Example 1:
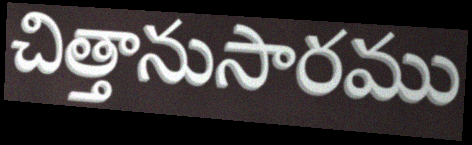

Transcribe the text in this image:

చిత్తానుసారము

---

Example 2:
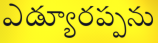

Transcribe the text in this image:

ఎడ్యూరప్పను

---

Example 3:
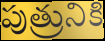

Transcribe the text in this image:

పుత్రునికి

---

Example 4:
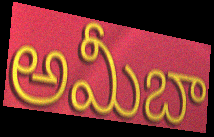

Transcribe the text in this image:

అమీబా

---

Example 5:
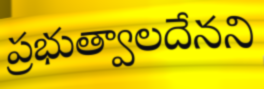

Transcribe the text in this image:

ప్రభుత్వాలదేనని